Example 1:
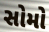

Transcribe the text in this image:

સોમો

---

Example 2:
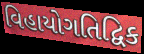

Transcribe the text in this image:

વિહાયોગતિદ્વિક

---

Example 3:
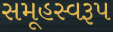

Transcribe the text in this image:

સમૂહસ્વરૂપ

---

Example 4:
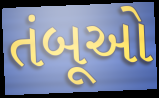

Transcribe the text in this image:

તંબૂઓ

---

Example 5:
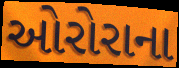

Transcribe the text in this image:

ઓરોરાના